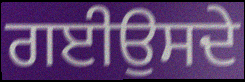
ਗਈਉਸਦੇ